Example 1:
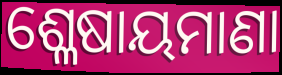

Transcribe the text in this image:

ଶ୍ଳେଷାୟମାଣା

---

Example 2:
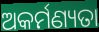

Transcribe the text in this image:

ଅକର୍ମଣ୍ୟତା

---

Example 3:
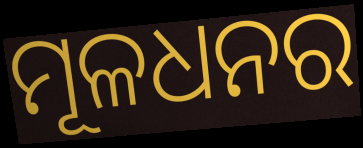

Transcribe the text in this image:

ମୂଳଧନର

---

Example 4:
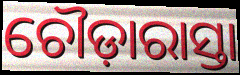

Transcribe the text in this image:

ଚୌଡ଼ାରାସ୍ତା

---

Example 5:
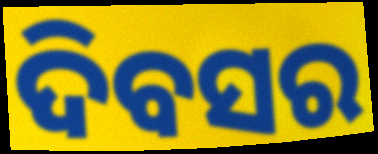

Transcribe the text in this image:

ଦିବସର